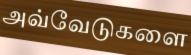
அவ்வேடுகளை